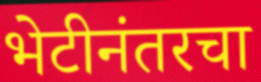
भेटीनंतरचा